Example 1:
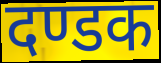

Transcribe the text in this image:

दण्डक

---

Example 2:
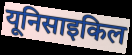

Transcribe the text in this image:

यूनिसाइकिल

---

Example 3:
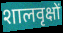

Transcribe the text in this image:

शालवृक्षों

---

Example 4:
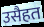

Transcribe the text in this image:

उसैहत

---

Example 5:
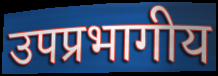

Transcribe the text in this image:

उपप्रभागीय